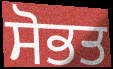
ਸੋਭਤ